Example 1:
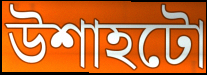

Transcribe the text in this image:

উশাহটো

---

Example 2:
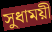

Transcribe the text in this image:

সুধাময়ী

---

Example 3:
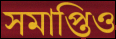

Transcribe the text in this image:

সমাপ্তিও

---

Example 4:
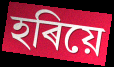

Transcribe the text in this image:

হৰিয়ে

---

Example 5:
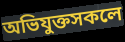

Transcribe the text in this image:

অভিযুক্তসকলে